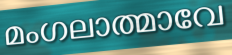
മംഗലാത്മാവേ